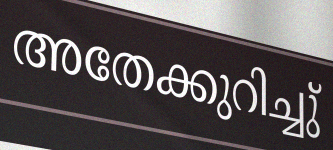
അതേക്കുറിച്ചു്